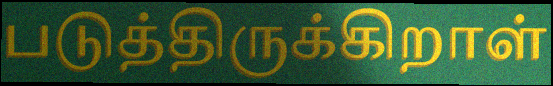
படுத்திருக்கிறாள்